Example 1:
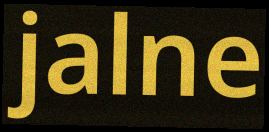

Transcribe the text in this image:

jalne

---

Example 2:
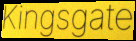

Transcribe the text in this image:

Kingsgate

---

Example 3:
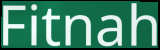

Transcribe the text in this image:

Fitnah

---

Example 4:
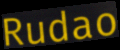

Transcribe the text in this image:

Rudao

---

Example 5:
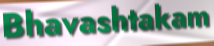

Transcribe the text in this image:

Bhavashtakam